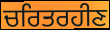
ਚਰਿਤਰਹੀਣ